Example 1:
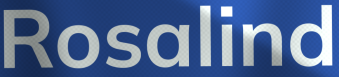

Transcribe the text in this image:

Rosalind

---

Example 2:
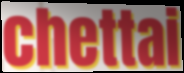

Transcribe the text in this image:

chettai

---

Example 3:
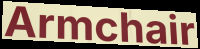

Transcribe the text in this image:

Armchair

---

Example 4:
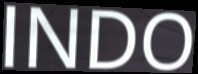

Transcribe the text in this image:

INDO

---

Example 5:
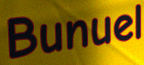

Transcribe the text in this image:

Bunuel